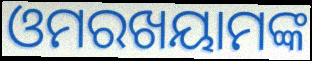
ଓମରଖୟାମଙ୍କ